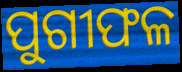
ପୁଗୀଫଳ